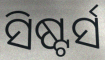
ସିଷ୍ଟର୍ସ